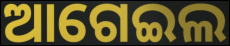
ଆଗେଇଲ